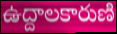
ఉద్దాలకారుణి